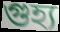
গুহ্য